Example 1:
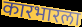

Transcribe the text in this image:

कारभारला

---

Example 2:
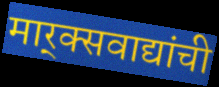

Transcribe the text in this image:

मार्क्सवाद्यांची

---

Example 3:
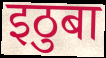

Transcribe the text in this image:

इठुबा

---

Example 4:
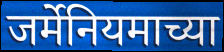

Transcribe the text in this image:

जर्मेनियमाच्या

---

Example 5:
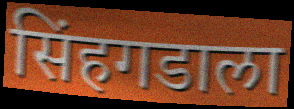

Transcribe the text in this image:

सिंहगडाला